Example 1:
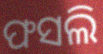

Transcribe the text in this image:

ଫସଲି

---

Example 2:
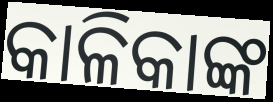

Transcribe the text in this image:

କାଳିକାଙ୍କ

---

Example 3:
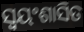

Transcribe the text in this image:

ସ୍ୱୟଂଶାସିତ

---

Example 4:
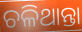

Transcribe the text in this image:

ଚଳିଥାନ୍ତା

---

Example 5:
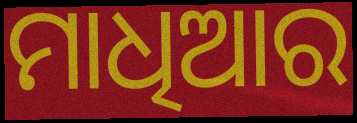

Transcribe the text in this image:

ମାଧିଆର